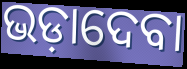
ଭଡ଼ାଦେବା